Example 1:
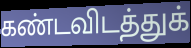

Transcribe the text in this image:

கண்டவிடத்துக்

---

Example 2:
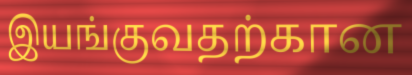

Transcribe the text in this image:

இயங்குவதற்கான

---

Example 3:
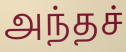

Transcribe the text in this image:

அந்தச்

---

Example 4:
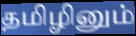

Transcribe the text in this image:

தமிழினும்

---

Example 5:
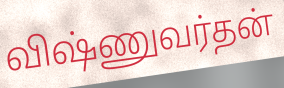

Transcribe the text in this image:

விஷ்ணுவர்தன்